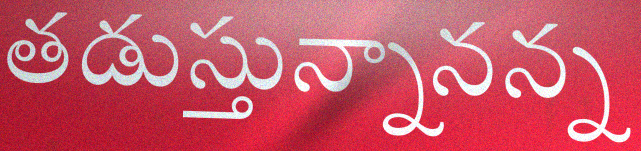
తడుస్తున్నానన్న